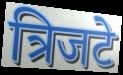
त्रिजटे